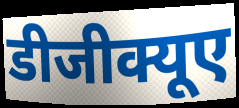
डीजीक्यूए